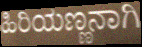
ಹಿರಿಯಣ್ಣನಾಗಿ